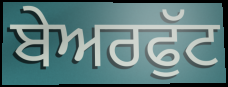
ਬੇਅਰਫੁੱਟ